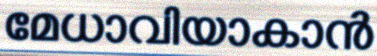
മേധാവിയാകാൻ